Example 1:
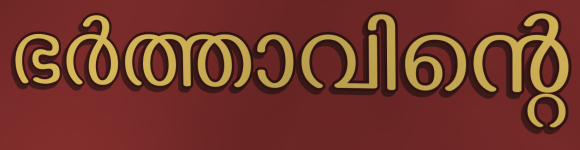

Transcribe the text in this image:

ഭർത്താവിന്റെ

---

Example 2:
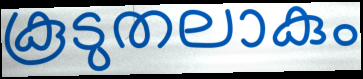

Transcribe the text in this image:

കൂടുതലാകും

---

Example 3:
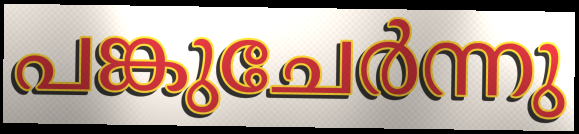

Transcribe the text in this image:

പങ്കുചേർന്നു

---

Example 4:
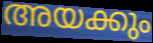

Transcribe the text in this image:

അയക്കും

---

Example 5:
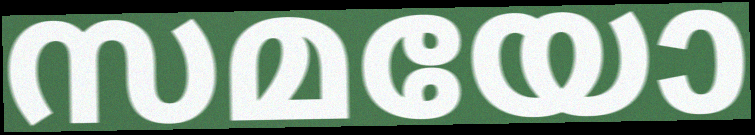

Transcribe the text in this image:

സമയോ